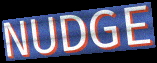
NUDGE